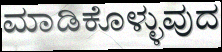
ಮಾಡಿಕೊಳ್ಳುವುದ